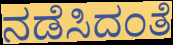
ನಡೆಸಿದಂತೆ